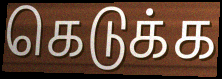
கெடுக்க